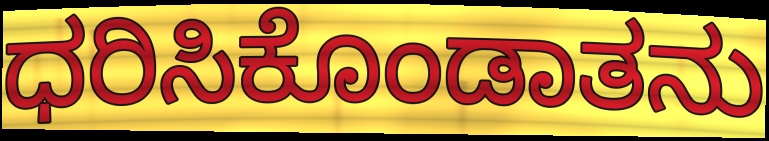
ಧರಿಸಿಕೊಂಡಾತನು